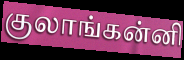
குலாங்கன்னி